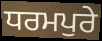
ਧਰਮਪੁਰੇ